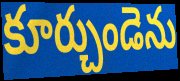
కూర్చుండెను